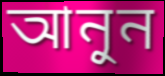
আনুন